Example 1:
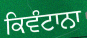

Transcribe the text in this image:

ਕਿਵੰਟਾਨਾ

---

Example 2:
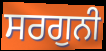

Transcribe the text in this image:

ਸਰਗੁਨੀ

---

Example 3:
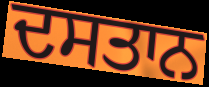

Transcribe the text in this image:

ਦਸਤਾਨ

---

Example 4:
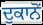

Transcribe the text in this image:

ਦੁਕਾਨੋਂ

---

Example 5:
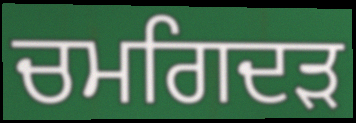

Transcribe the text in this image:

ਚਮਗਿਦੜ